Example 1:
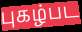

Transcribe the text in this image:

புகழ்பட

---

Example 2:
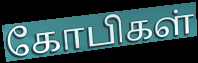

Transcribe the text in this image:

கோபிகள்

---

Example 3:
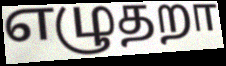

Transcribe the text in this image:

எழுதறா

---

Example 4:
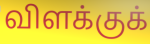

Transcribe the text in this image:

விளக்குக்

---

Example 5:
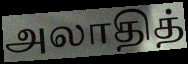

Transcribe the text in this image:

அலாதித்